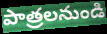
పాత్రలనుండి